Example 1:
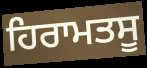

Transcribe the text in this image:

ਹਿਰਾਮਤਸੂ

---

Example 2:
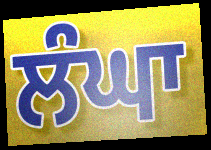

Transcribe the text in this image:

ਲੰਘਾ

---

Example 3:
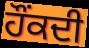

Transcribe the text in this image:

ਹੌਂਕਦੀ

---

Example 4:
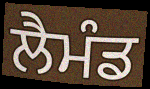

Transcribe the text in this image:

ਲੈਮੰਡ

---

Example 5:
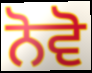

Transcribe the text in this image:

ਨੋਵੋ